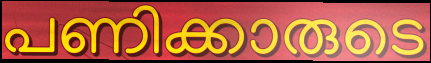
പണിക്കാരുടെ